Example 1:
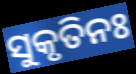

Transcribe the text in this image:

ସୁକୃତିନଃ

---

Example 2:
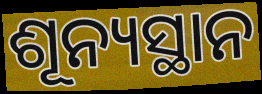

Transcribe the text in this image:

ଶୂନ୍ୟସ୍ଥାନ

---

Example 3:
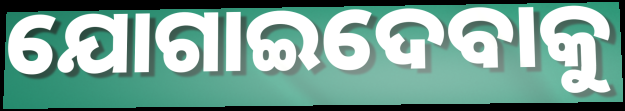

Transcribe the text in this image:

ଯୋଗାଇଦେବାକୁ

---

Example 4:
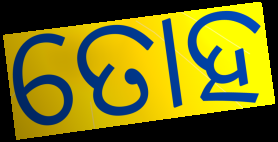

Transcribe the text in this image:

ତୋହ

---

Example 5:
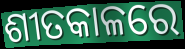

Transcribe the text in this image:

ଶୀତକାଳରେ